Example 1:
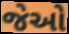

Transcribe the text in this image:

જેઓ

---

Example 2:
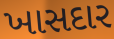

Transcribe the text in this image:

ખાસદાર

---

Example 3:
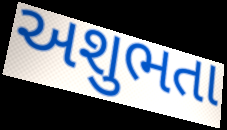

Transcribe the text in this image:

અશુભતા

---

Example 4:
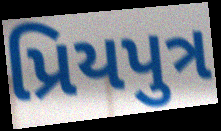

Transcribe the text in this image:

પ્રિયપુત્ર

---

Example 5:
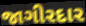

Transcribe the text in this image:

જાગીરદાર